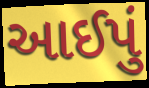
આઈપું